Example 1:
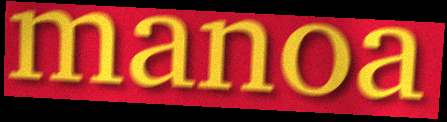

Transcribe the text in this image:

manoa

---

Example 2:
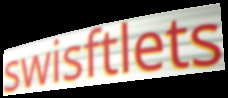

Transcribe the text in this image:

swisftlets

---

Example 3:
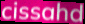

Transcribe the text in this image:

cissahd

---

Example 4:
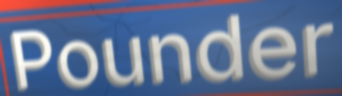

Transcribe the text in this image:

Pounder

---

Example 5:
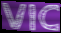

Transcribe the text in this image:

VIC